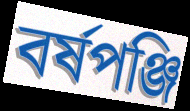
বর্ষপঞ্জি